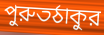
পুরুতঠাকুর